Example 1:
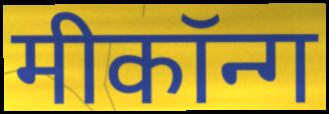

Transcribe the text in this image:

मीकॉन्ग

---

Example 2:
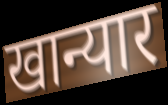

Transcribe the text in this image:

खान्यार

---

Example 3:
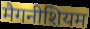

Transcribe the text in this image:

मैगनीशियम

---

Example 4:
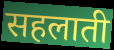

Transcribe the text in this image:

सहलाती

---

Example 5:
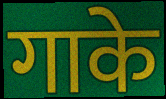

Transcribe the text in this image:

गाके